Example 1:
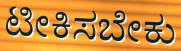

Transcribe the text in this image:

ಟೀಕಿಸಬೇಕು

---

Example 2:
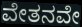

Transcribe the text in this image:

ವೇತನವೇ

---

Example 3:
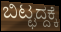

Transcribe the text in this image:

ಬಿಟ್ಟದ್ದಕ್ಕೆ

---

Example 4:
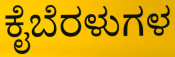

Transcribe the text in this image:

ಕೈಬೆರಳುಗಳ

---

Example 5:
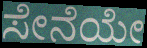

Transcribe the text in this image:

ಸೇನೆಯೇ